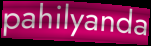
pahilyanda